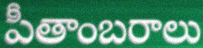
పీతాంబరాలు